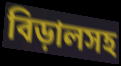
বিড়ালসহ